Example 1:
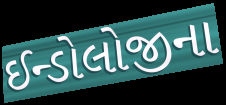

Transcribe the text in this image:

ઈન્ડોલોજીના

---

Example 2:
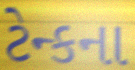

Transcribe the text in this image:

ટેન્કના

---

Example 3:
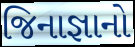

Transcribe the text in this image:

જિનાજ્ઞાનો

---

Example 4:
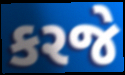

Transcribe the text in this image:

કરજે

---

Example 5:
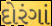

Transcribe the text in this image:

દોરંગાં